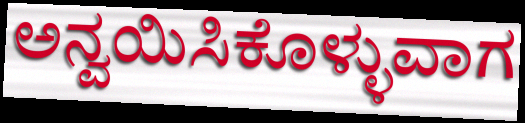
ಅನ್ವಯಿಸಿಕೊಳ್ಳುವಾಗ